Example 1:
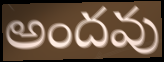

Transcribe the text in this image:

అందవు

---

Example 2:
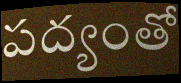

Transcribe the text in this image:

పద్యంతో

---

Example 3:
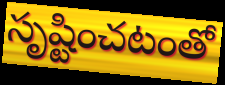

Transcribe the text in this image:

సృష్టించటంతో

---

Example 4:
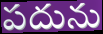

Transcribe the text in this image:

పదును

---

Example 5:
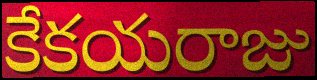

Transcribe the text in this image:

కేకయరాజు